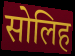
सोलिह